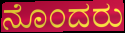
ನೊಂದರು